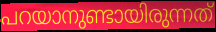
പറയാനുണ്ടായിരുന്നത്